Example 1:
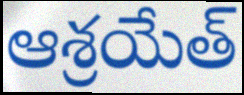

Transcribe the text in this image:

ఆశ్రయేత్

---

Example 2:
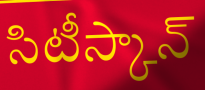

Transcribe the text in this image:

సిటీస్కాన్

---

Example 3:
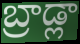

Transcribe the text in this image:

బ్రాడ్లా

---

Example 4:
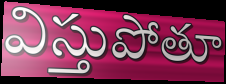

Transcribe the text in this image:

విస్తుపోతూ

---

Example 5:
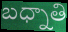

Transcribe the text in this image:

బధ్నాతి